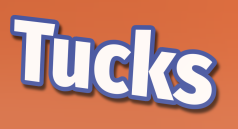
Tucks